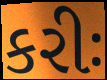
કરીઃ